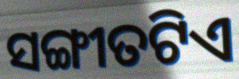
ସଙ୍ଗୀତଟିଏ